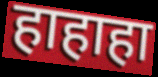
हाहाहा